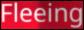
Fleeing